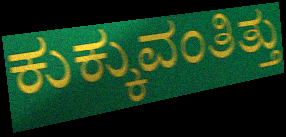
ಕುಕ್ಕುವಂತಿತ್ತು